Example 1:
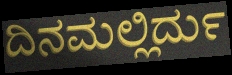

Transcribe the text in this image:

ದಿನಮಲ್ಲಿರ್ದು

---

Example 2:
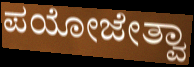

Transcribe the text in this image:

ಪಯೋಜೇತ್ವಾ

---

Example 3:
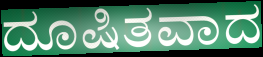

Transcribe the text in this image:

ದೂಷಿತವಾದ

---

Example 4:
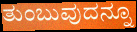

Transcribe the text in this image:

ತುಂಬುವುದನ್ನೂ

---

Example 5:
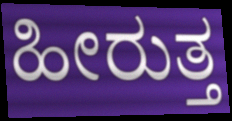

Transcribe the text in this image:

ಹೀರುತ್ತ